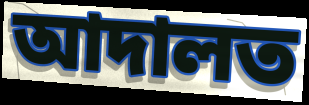
আদালত